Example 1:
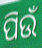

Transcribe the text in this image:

ପିଉଁ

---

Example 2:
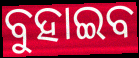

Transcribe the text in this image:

ବୁହାଇବ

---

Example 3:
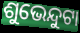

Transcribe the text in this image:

ଶୁଭେନ୍ଦୁଟା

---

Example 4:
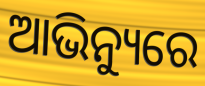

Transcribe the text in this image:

ଆଭିନ୍ୟୁରେ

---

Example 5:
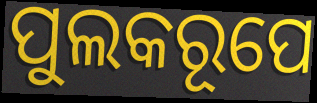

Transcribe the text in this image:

ପୁଲକରୂପେ